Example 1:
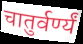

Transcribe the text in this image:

चातुर्वर्ण्यं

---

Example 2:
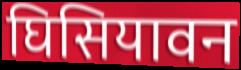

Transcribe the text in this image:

घिसियावन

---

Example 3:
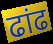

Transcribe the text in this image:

ढांढ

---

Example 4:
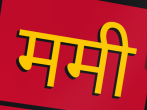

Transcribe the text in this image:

ममी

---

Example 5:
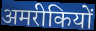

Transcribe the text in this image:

अमरीकियों